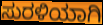
ಸುರಳಿಯಾಗಿ